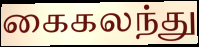
கைகலந்து